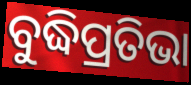
ବୁଦ୍ଧିପ୍ରତିଭା